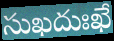
సుఖదుఃఖే